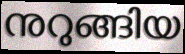
നുറുങ്ങിയ